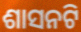
ଶାସନଟି